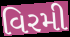
વિરમી